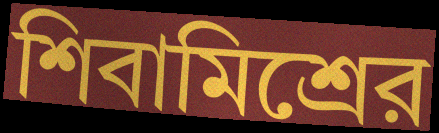
শিবামিশ্রের